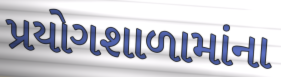
પ્રયોગશાળામાંના